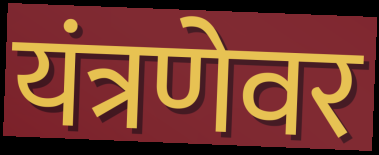
यंत्रणेवर